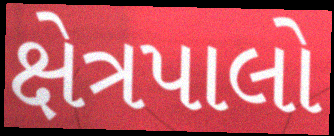
ક્ષેત્રપાલો